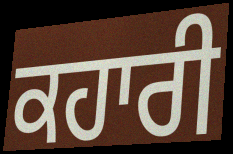
ਕਹਾਰੀ